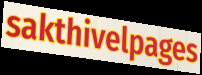
sakthivelpages